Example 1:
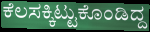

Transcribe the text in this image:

ಕೆಲಸಕ್ಕಿಟ್ಟುಕೊಂಡಿದ್ದ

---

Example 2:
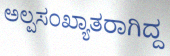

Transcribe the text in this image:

ಅಲ್ಪಸಂಖ್ಯಾತರಾಗಿದ್ದ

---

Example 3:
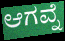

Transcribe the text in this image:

ಆಗವ್ನೆ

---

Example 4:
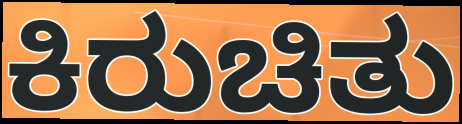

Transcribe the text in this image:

ಕಿರುಚಿತು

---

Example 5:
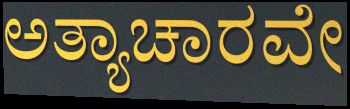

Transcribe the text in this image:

ಅತ್ಯಾಚಾರವೇ